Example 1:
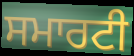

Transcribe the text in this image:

ਸਮਾਰਟੀ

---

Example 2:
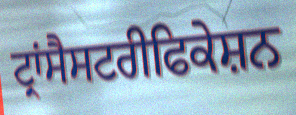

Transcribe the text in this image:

ਟ੍ਰਾਂਸੈਸਟਰੀਫਿਕੇਸ਼ਨ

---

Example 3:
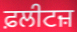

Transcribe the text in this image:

ਫ਼ਲੀਟਜ਼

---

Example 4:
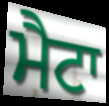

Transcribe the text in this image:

ਮੈਟਾ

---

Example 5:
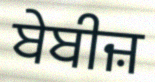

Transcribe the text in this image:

ਬੇਬੀਜ਼